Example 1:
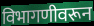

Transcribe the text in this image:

विभागणीवरून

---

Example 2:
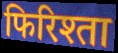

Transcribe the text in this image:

फिरिश्ता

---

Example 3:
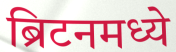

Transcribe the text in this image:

ब्रिटनमध्ये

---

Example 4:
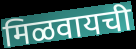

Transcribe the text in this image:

मिळवायची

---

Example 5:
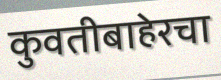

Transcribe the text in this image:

कुवतीबाहेरचा